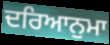
ਦਰਿਆਨੁਮਾ